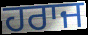
ਹਰਾਜ